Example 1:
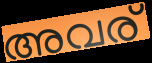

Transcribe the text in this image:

അവര്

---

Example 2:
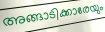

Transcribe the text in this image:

അങ്ങാടിക്കാരേയും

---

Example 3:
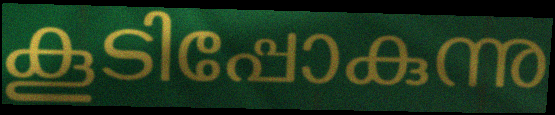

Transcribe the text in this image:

കൂടിപ്പോകുന്നു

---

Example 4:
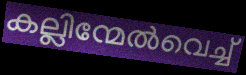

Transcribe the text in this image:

കല്ലിന്മേൽവെച്ച്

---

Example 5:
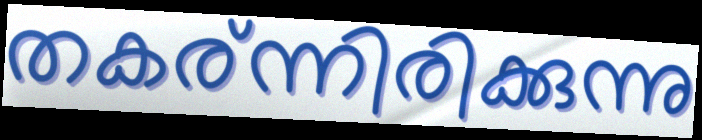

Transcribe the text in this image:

തകര്ന്നിരിക്കുന്നു